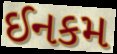
ઈનકમ